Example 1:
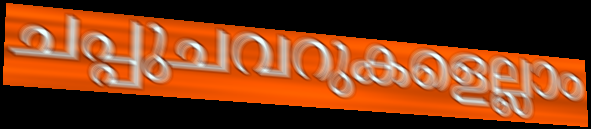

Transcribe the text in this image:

ചപ്പുചവറുകളെല്ലാം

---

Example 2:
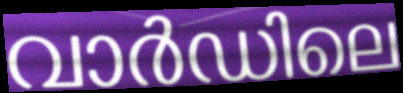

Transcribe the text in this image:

വാർഡിലെ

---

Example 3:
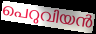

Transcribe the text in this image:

പെറുവിയൻ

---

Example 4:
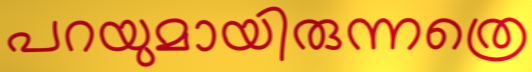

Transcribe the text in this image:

പറയുമായിരുന്നത്രെ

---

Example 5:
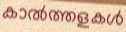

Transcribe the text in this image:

കാൽത്തളകൾ